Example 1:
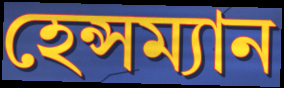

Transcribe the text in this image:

হেন্সম্যান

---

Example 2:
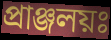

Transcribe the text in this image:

প্রাঞ্জলয়ঃ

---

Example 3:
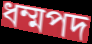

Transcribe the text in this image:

ধম্মপদ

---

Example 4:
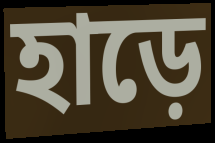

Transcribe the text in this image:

হাড়ে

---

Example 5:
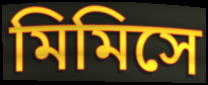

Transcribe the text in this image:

মিমিসে